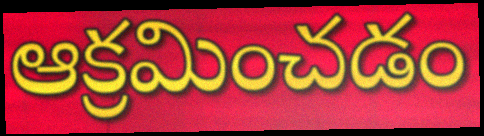
ఆక్రమించడం